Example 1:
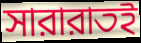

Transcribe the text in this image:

সারারাতই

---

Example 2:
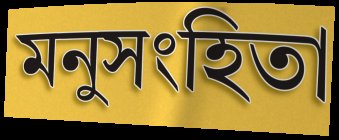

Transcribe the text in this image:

মনুসংহিতা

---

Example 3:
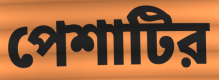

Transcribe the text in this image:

পেশাটির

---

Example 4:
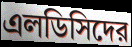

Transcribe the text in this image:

এলডিসিদের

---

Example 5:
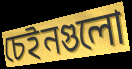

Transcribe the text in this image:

চেইনগুলো